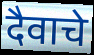
दैवाचे